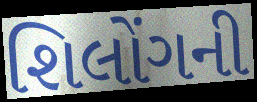
શિલોંગની